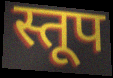
स्तूप